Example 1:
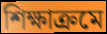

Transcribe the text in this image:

শিক্ষাক্রমে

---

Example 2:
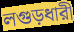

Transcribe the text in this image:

লগুড়ধারী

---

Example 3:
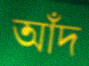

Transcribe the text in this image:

আঁদ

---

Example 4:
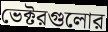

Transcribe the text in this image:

ভেক্টরগুলোর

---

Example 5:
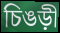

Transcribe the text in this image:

চিঙড়ী